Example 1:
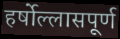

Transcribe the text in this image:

हर्षोल्लासपूर्ण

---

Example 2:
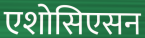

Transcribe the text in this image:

एशोसिएसन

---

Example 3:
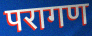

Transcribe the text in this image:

परागण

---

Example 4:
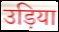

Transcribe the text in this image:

उड़िया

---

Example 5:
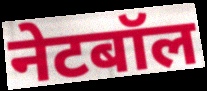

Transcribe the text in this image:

नेटबॉल